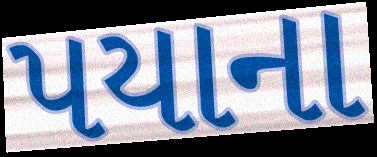
પયાના